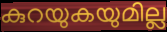
കുറയുകയുമില്ല